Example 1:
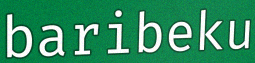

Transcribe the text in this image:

baribeku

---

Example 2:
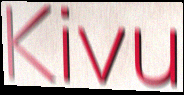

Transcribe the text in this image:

Kivu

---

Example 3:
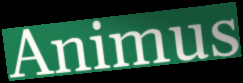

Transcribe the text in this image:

Animus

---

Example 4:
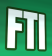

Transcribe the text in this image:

FTI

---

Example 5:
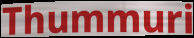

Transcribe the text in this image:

Thummuri